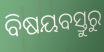
ବିଷୟବସ୍ତୁରୁ